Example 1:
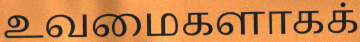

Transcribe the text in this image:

உவமைகளாகக்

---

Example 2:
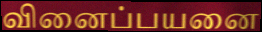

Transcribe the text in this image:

வினைப்பயனை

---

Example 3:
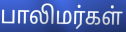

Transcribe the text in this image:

பாலிமர்கள்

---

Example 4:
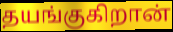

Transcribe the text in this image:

தயங்குகிறான்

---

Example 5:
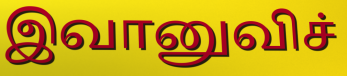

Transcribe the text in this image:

இவானுவிச்